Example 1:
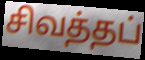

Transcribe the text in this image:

சிவத்தப்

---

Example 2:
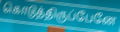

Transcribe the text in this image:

கொடுத்திருப்பேனே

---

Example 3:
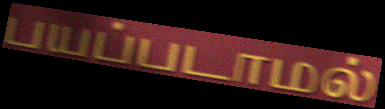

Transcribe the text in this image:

பயப்படாமல்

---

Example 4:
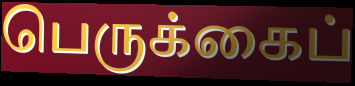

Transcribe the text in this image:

பெருக்கைப்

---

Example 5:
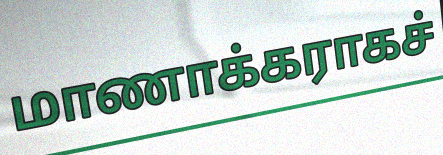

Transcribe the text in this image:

மாணாக்கராகச்